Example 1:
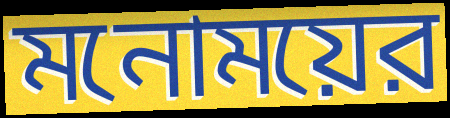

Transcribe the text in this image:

মনোময়ের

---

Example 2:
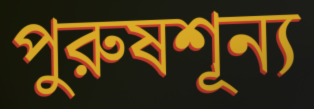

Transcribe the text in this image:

পুরুষশূন্য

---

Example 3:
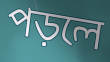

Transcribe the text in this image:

পড়লে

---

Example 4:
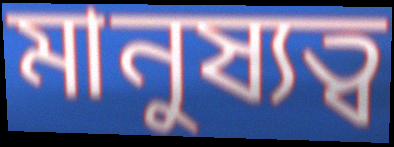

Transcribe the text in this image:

মানুষ্যত্ব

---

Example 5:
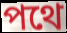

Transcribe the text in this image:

পথে